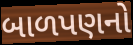
બાળપણનો